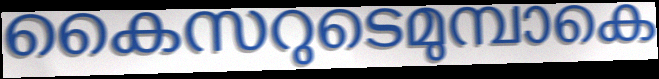
കൈസറുടെമുമ്പാകെ